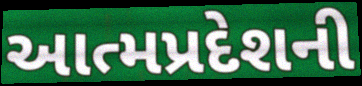
આત્મપ્રદેશની